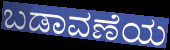
ಬಡಾವಣೆಯ